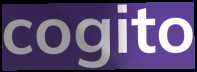
cogito